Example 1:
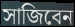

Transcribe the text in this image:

সাজিবেন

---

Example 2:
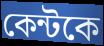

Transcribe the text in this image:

কেন্টকে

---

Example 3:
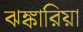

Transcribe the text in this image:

ঝঙ্কারিয়া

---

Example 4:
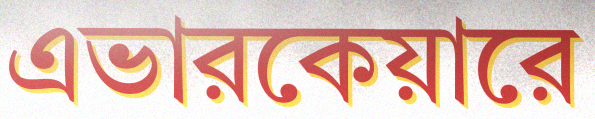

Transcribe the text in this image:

এভারকেয়ারে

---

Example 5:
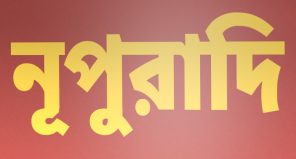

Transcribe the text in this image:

নূপুরাদি